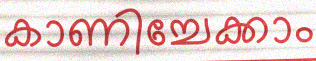
കാണിച്ചേക്കാം